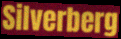
Silverberg